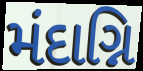
મંદાગ્નિ